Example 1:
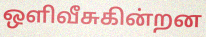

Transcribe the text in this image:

ஒளிவீசுகின்றன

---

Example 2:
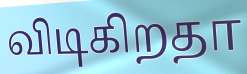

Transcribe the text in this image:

விடிகிறதா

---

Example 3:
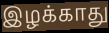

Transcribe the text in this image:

இழக்காது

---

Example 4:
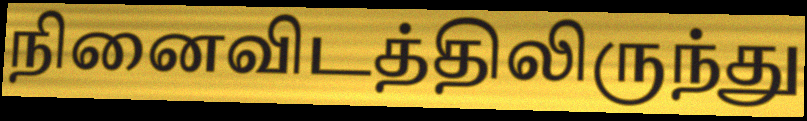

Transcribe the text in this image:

நினைவிடத்திலிருந்து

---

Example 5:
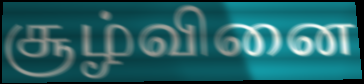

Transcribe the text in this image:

சூழ்வினை